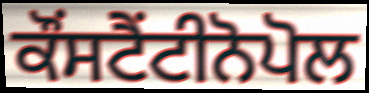
ਕੌਂਸਟੈਂਟੀਨੋਪੋਲ